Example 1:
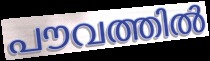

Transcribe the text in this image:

പൗവത്തിൽ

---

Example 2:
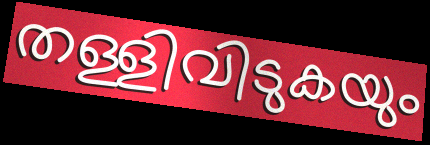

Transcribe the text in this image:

തള്ളിവിടുകയും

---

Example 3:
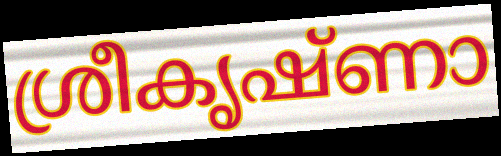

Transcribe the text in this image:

ശ്രീകൃഷ്ണാ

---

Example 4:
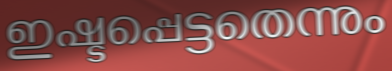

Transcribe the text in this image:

ഇഷ്ടപ്പെട്ടതെന്നും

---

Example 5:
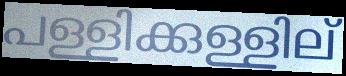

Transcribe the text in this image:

പള്ളിക്കുള്ളില്